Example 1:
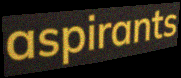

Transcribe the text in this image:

aspirants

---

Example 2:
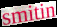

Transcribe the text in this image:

smitin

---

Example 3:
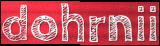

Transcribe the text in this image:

dohrnii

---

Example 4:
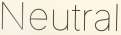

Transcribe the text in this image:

Neutral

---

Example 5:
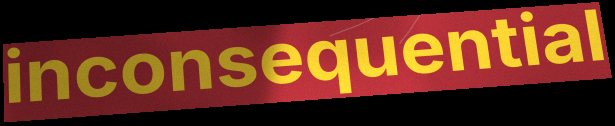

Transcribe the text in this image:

inconsequential